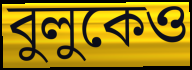
বুলুকেও